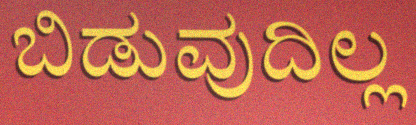
ಬಿಡುವುದಿಲ್ಲ